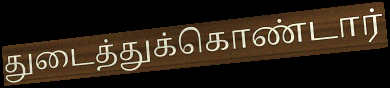
துடைத்துக்கொண்டார்